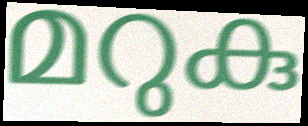
മറുകു